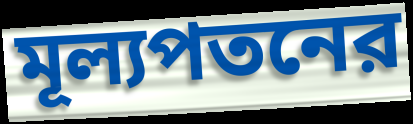
মূল্যপতনের